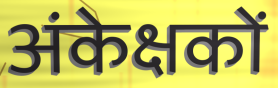
अंकेक्षकों